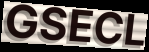
GSECL